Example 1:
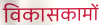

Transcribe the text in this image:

विकासकामों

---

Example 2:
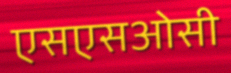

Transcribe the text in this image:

एसएसओसी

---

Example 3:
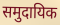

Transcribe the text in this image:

समुदायिक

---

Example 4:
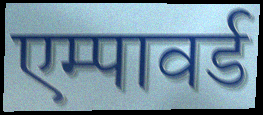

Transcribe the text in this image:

एम्पावर्ड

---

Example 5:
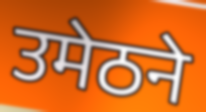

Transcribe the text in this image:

उमेठने